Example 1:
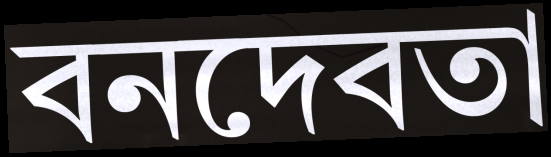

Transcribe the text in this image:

বনদেবতা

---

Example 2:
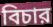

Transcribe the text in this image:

বিচার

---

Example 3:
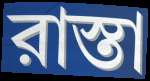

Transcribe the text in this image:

রাস্তা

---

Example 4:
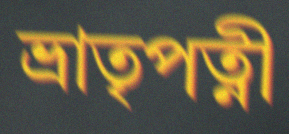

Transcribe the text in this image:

ভ্রাতৃপত্নী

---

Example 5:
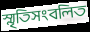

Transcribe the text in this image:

স্মৃতিসংবলিত